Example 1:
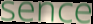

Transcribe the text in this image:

sence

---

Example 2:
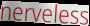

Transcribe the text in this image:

nerveless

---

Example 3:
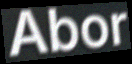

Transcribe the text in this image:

Abor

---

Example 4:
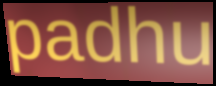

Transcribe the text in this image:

padhu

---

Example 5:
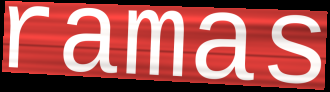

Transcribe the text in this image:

ramas